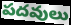
పదవులు